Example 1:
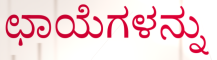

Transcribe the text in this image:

ಛಾಯೆಗಳನ್ನು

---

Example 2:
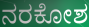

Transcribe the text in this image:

ನರಕೋಶ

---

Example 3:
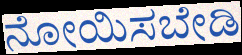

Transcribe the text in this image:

ನೋಯಿಸಬೇಡಿ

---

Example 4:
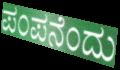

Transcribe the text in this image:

ಪಂಪನೆಂದು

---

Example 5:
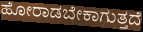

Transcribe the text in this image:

ಹೋರಾಡಬೇಕಾಗುತ್ತದೆ